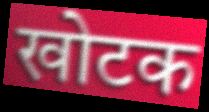
खोटक